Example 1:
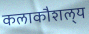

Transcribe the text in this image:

कलाकौशल्य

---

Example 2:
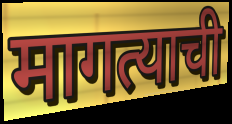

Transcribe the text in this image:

मागत्याची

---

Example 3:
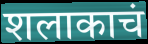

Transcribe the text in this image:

शलाकाचं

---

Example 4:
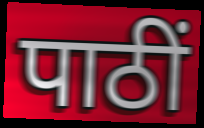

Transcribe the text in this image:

पाठीं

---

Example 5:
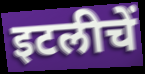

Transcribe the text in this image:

इटलीचें